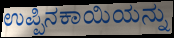
ಉಪ್ಪಿನಕಾಯಿಯನ್ನು